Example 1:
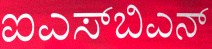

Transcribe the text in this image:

ಐಎಸ್‌ಬಿಎನ್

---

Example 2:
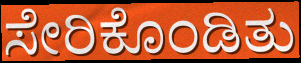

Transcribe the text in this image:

ಸೇರಿಕೊಂಡಿತು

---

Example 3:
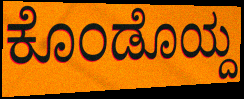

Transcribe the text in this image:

ಕೊಂಡೊಯ್ದ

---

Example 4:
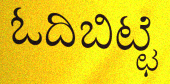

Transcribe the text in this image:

ಓದಿಬಿಟ್ಟೆ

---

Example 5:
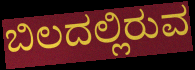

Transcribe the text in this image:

ಬಿಲದಲ್ಲಿರುವ